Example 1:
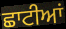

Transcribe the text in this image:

ਛਾਟੀਆਂ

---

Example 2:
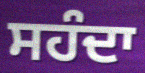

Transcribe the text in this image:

ਸਹੰਦਾ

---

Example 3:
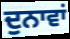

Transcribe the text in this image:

ਦੁਨਾਵਾਂ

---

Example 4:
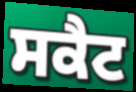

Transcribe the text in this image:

ਸਕੈਟ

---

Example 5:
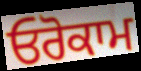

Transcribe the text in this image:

ਓਰੋਕਾਮ